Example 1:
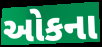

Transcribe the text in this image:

ઓકના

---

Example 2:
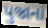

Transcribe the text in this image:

પુજાનાં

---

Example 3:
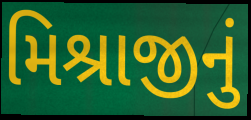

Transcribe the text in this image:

મિશ્રાજીનું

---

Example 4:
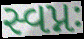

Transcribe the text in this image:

સ્વપ્નઃ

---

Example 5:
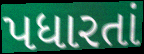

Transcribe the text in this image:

પધારતાં